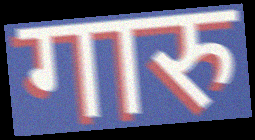
गारु